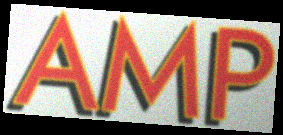
AMP